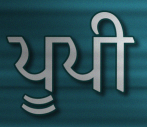
ਪੂਪੀ